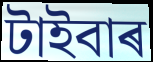
টাইবাৰ